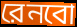
রেনবো